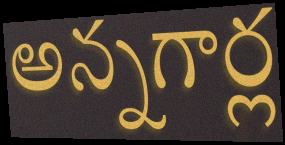
అన్నగార్ల